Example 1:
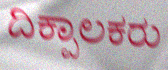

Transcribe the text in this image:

ದಿಕ್ಪಾಲಕರು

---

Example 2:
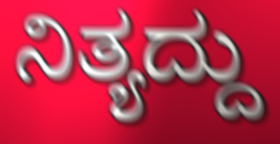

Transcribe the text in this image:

ನಿತ್ಯದ್ದು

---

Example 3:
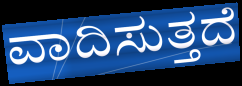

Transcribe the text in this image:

ವಾದಿಸುತ್ತದೆ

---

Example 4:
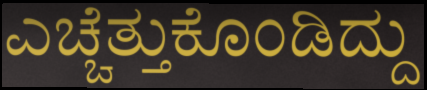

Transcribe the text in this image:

ಎಚ್ಚೆತ್ತುಕೊಂಡಿದ್ದು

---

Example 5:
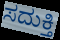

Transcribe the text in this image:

ಸದುಕ್ತಿ